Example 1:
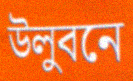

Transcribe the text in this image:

উলুবনে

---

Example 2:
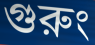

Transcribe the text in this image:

গুরুং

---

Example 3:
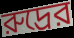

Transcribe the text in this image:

রুদ্রের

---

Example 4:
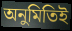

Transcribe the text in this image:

অনুমিতিই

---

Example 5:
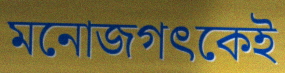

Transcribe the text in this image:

মনোজগৎকেই